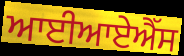
ਆਈਆਏਐੱਸ